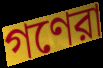
গণেরা